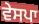
ਵੇਸਪਾ